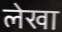
लेखा